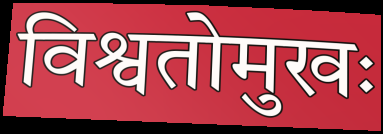
विश्वतोमुखः